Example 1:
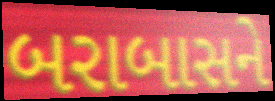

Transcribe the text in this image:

બરાબાસને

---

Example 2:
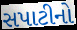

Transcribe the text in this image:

સપાટીનો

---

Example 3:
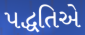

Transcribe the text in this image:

પદ્ધતિએ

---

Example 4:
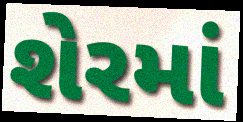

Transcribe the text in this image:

શેરમાં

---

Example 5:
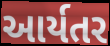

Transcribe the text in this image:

આર્યતર